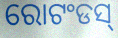
ରୋଟଂଡସ୍